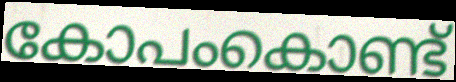
കോപംകൊണ്ട്